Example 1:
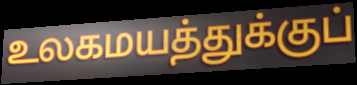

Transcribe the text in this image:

உலகமயத்துக்குப்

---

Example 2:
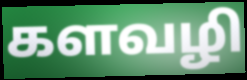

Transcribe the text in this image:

களவழி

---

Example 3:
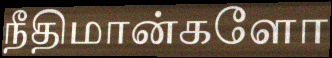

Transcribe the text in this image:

நீதிமான்களோ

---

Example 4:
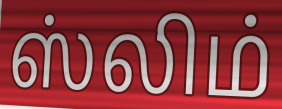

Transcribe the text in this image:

ஸ்லிம்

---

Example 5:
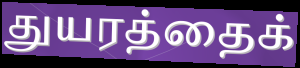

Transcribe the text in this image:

துயரத்தைக்